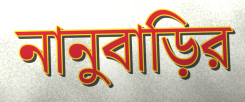
নানুবাড়ির